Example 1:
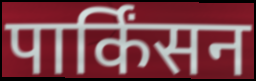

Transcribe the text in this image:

पार्किंसन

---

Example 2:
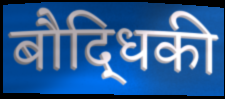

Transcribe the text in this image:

बौद्धिकी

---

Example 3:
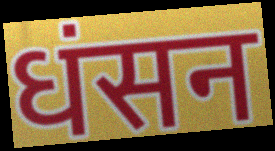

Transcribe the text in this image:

धंसन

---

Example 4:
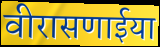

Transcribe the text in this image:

वीरासणाईया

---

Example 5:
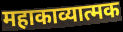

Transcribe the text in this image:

महाकाव्यात्मक